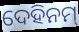
ଦେହିନମ୍